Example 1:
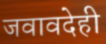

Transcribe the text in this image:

जवावदेही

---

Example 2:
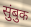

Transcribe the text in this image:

सुंबुक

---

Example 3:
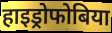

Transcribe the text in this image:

हाइड्रोफोबिया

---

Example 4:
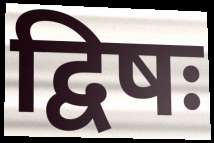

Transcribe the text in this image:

द्विषः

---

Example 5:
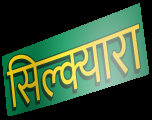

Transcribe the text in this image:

सिल्क्यारा